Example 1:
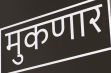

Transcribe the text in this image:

मुकणार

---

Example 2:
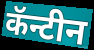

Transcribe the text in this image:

कॅन्टीन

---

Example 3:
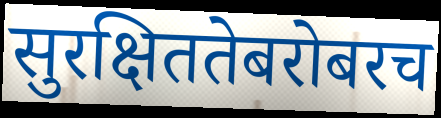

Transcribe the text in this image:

सुरक्षिततेबरोबरच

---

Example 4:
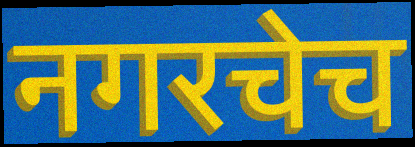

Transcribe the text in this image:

नगरचेच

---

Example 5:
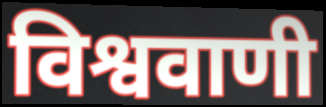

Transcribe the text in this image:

विश्ववाणी